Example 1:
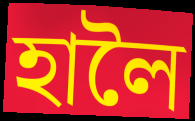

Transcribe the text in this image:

হালৈ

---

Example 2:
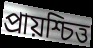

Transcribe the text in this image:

প্ৰায়শ্চিত্ত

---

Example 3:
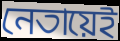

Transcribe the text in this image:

নেতায়েই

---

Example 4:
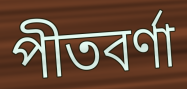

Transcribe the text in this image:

পীতবৰ্ণা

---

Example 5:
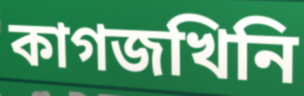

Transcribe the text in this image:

কাগজখিনি